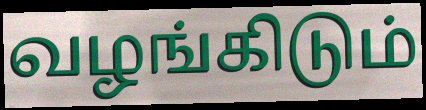
வழங்கிடும்